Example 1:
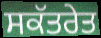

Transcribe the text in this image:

ਸਕੱਤਰੇਤ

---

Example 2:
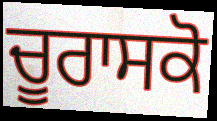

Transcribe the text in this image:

ਚੂਰਾਸਕੋ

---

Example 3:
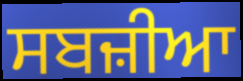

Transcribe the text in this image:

ਸਬਜ਼ੀਆ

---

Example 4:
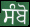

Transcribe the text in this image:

ਸੰਬੋ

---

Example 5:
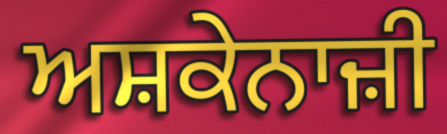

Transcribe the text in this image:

ਅਸ਼ਕੇਨਾਜ਼ੀ